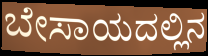
ಬೇಸಾಯದಲ್ಲಿನ